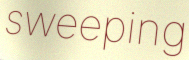
sweeping